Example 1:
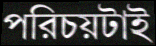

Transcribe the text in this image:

পরিচয়টাই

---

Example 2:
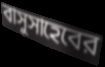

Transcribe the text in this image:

বাসুসাহেবের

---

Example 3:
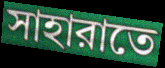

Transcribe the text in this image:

সাহারাতে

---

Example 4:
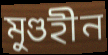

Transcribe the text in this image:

মুণ্ডহীন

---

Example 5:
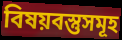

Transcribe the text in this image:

বিষয়বস্তুসমূহ